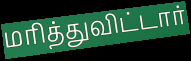
மரித்துவிட்டார்